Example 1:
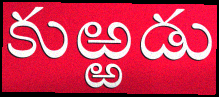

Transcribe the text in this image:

కుఱ్ఱడు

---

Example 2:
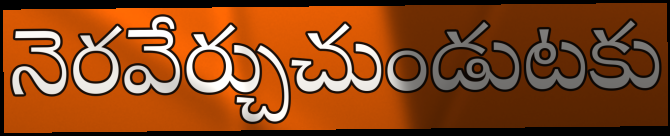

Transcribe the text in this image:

నెరవేర్చుచుండుటకు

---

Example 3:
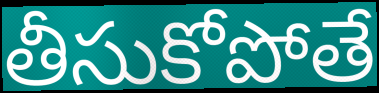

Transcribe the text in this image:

తీసుకోపోతే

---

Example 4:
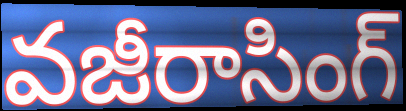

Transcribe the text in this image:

వజీరాసింగ్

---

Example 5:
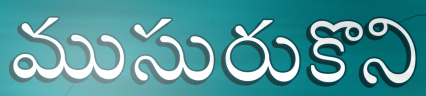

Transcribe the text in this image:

ముసురుకొని